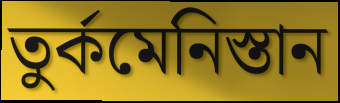
তুৰ্কমেনিস্তান